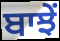
ਬਾਝੇਂ